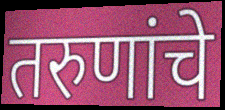
तरुणांचे